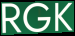
RGK